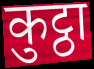
कुट्ठा